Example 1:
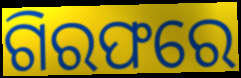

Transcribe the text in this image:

ଗିରଫରେ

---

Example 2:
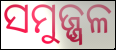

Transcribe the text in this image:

ସମୁଜ୍ଜ୍ୱଳ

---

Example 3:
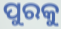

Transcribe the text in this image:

ପୁରକୁ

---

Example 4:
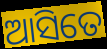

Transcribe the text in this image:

ଆସିତେ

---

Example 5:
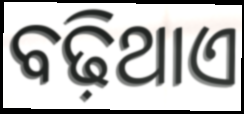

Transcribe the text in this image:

ବଢ଼ିଥାଏ